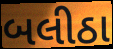
બલીઠા